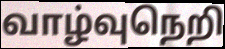
வாழ்வுநெறி